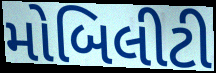
મોબિલીટી